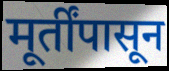
मूर्तींपासून